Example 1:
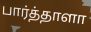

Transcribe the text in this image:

பார்த்தாளா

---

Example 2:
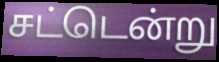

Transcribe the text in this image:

சட்டென்று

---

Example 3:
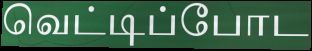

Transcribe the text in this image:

வெட்டிப்போட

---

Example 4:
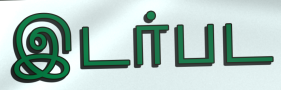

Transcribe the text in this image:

இடர்பட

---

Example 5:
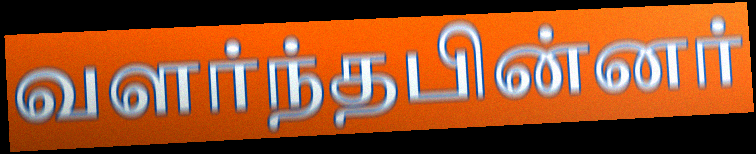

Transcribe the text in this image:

வளர்ந்தபின்னர்